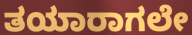
ತಯಾರಾಗಲೇ